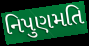
નિપુણમતિ